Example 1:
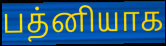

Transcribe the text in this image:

பத்னியாக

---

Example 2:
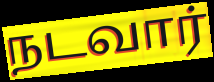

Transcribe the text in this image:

நடவார்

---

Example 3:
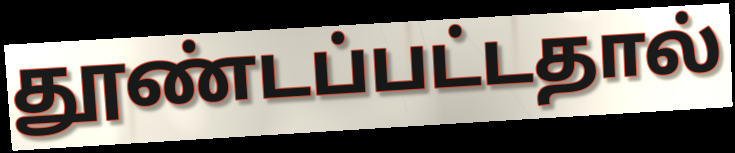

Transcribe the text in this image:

தூண்டப்பட்டதால்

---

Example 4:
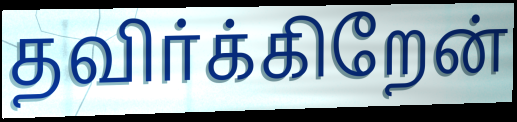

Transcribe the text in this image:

தவிர்க்கிறேன்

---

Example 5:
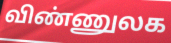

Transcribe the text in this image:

விண்ணுலக